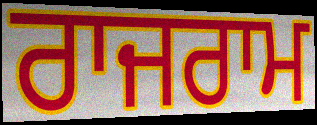
ਰਾਜਰਾਮ